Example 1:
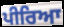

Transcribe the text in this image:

ਪੀਰਿਆ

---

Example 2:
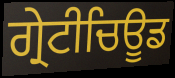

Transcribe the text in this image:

ਗ੍ਰੇਟੀਚਿਊਡ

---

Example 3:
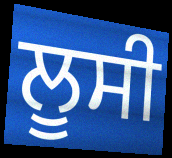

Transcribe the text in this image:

ਲੂਸੀ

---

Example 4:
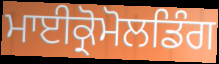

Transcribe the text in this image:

ਮਾਈਕ੍ਰੋਮੋਲਡਿੰਗ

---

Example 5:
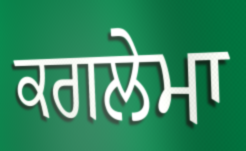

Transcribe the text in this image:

ਕਗਲੇਮਾ